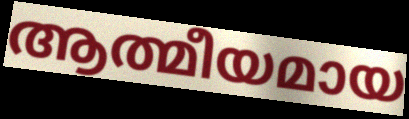
ആത്മീയമായ